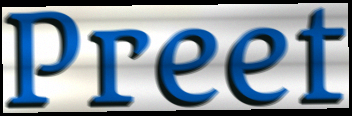
Preet